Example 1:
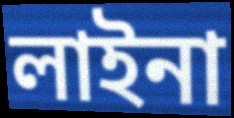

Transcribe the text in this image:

লাইনা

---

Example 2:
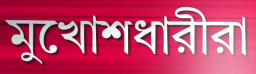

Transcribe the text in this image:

মুখোশধারীরা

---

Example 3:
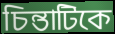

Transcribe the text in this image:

চিন্তাটিকে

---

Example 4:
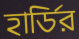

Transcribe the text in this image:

হার্ডির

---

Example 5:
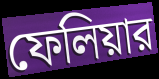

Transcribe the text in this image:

ফেলিয়ার